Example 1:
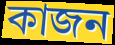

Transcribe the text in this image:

কাজন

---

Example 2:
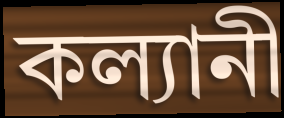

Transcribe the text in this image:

কল্যানী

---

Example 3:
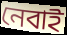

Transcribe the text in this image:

নেবাই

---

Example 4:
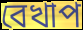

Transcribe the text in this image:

বেখাপ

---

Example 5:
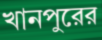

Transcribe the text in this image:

খানপুরের